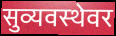
सुव्यवस्थेवर